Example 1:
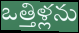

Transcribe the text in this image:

ఒత్తిళ్లను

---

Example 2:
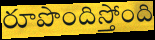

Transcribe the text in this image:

రూపొందిస్తోంది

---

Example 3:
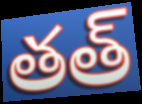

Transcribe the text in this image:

తత్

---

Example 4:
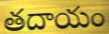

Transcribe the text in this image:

తదాయం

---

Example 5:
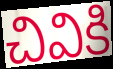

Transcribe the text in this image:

చివికి